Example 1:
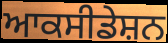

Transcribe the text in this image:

ਆਕਸੀਡੇਸ਼ਨ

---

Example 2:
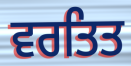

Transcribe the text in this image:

ਵਰਤਿਤ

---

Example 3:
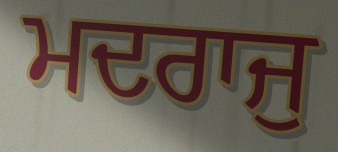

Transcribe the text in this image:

ਮਦਰਾਜੁ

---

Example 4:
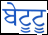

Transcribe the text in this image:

ਬੇਟੂਟੂ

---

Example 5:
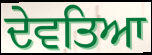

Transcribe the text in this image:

ਦੇਵਤਿਆ